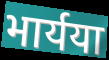
भार्यया